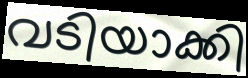
വടിയാക്കി